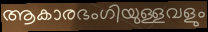
ആകാരഭംഗിയുള്ളവളും